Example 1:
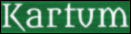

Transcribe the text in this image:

Kartum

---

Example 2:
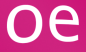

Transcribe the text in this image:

oe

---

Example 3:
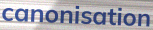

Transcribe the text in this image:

canonisation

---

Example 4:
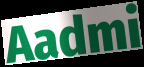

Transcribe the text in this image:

Aadmi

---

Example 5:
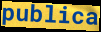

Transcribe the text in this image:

publica